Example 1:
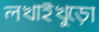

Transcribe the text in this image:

লখাইখুড়ো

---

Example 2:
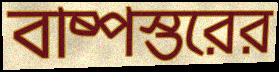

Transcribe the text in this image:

বাষ্পস্তরের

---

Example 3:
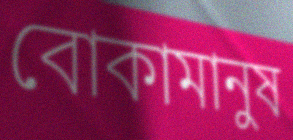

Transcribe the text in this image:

বোকামানুষ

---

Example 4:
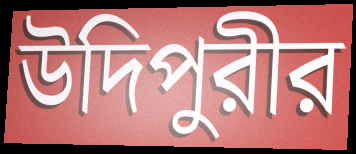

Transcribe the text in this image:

উদিপুরীর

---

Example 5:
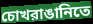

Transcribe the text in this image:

চোখরাঙানিতে